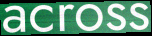
across